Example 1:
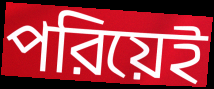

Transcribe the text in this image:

পরিয়েই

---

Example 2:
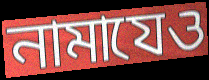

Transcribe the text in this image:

নামাযেও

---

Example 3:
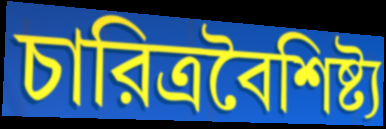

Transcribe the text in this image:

চারিত্রবৈশিষ্ট্য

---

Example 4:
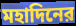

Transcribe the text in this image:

মহাদিনের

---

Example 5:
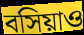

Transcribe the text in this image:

বসিয়াও